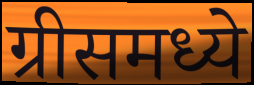
ग्रीसमध्ये